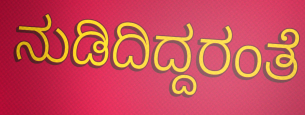
ನುಡಿದಿದ್ದರಂತೆ